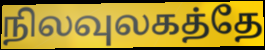
நிலவுலகத்தே